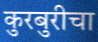
कुरबुरीचा